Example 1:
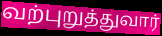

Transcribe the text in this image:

வற்புறுத்துவார்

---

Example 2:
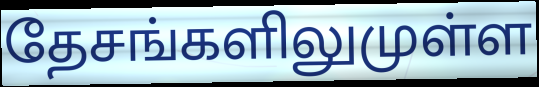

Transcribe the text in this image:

தேசங்களிலுமுள்ள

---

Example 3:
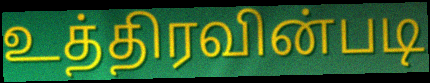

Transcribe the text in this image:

உத்திரவின்படி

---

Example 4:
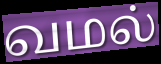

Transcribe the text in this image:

வமல்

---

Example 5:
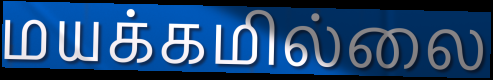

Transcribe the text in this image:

மயக்கமில்லை